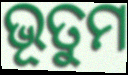
ଭୂତୁମ